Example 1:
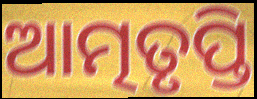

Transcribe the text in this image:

ଆତ୍ମତୃପ୍ତି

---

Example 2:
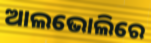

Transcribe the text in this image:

ଆଲଭୋଲିରେ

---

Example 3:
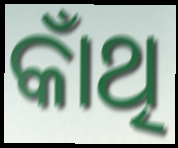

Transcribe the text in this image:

କାଁଥି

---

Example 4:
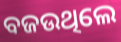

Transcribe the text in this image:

ବଜଉଥିଲେ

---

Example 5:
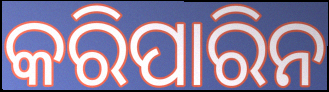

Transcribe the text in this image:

କରିପାରିନ